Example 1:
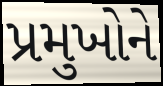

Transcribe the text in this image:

પ્રમુખોને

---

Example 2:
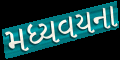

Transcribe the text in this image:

મધ્યવયના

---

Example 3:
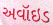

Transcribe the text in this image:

અવૉઇડ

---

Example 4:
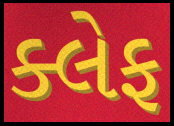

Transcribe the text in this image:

ક્લેફ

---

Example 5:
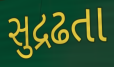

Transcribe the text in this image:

સુદ્રઢતા